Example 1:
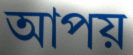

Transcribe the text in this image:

আপয়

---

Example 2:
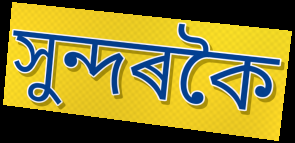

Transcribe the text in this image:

সুন্দৰকৈ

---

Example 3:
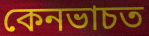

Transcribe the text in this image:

কেনভাচত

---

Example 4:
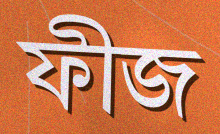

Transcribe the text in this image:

ফীজ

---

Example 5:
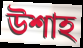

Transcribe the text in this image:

উশাহ